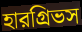
হারগ্রিভস